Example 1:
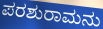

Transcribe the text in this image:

ಪರಶುರಾಮನು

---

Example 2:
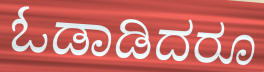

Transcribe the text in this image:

ಓಡಾಡಿದರೂ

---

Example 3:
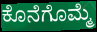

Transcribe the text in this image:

ಕೊನೆಗೊಮ್ಮೆ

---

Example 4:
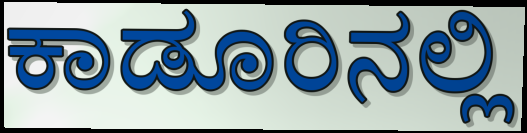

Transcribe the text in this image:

ಕಾಡೂರಿನಲ್ಲಿ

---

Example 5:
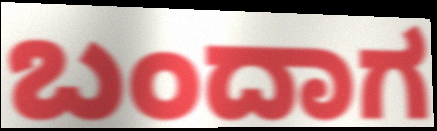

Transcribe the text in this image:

ಬಂದಾಗ